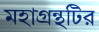
মহাগ্রন্থটির